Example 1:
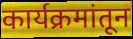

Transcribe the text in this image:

कार्यक्रमांतून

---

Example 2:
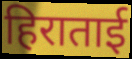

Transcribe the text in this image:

हिराताई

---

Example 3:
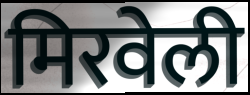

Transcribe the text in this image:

मिरवेली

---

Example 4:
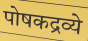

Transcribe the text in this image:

पोषकद्रव्ये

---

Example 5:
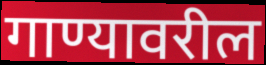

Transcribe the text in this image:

गाण्यावरील